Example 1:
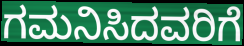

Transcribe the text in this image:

ಗಮನಿಸಿದವರಿಗೆ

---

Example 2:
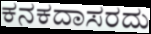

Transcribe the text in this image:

ಕನಕದಾಸರದು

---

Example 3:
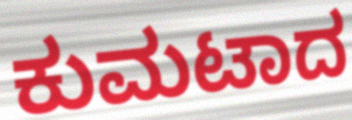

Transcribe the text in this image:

ಕುಮಟಾದ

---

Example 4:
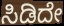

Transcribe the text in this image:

ಸಿಡಿದೇ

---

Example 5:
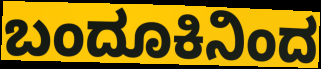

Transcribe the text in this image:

ಬಂದೂಕಿನಿಂದ